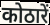
कोठारें